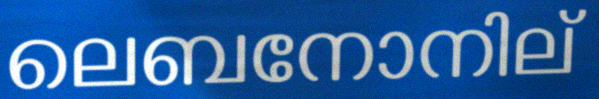
ലെബനോനില്